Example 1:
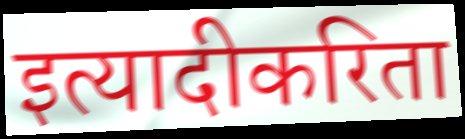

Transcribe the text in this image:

इत्यादीकरिता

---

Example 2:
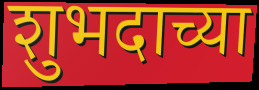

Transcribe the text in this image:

शुभदाच्या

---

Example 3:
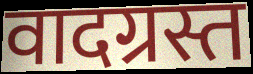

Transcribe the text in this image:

वादग्रस्त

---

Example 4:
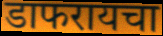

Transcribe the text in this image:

डाफरायचा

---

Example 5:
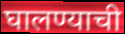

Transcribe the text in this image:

घालण्याची